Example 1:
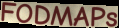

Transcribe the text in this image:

FODMAPs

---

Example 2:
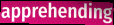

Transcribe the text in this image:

apprehending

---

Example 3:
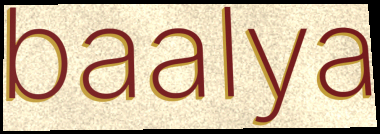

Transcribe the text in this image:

baalya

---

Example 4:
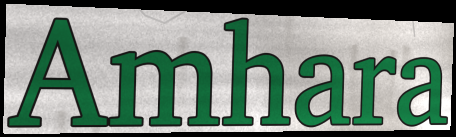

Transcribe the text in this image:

Amhara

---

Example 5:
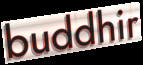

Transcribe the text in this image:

buddhir